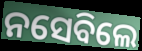
ନସେବିଲେ